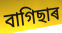
বাগিছাৰ